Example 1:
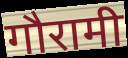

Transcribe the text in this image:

गौरामी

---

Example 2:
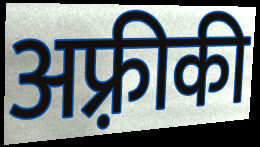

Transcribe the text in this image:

अफ़्रीकी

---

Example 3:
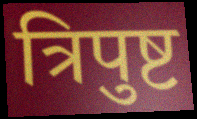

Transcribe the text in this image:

त्रिपुष्ट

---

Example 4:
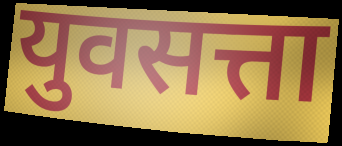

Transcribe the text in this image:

युवसत्ता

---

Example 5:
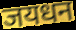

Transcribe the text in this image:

जयधन